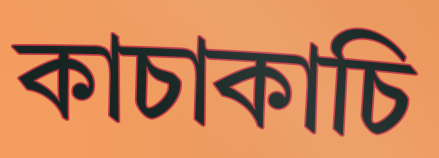
কাচাকাচি